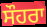
ਸੌਹਰਾ